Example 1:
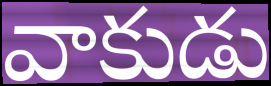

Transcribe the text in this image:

వాకుడు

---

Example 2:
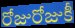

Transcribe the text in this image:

రోజురోజుకీ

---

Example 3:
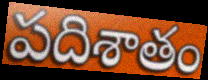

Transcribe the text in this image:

పదిశాతం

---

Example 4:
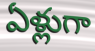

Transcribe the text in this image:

ఏళ్లుగా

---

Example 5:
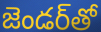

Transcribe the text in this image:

జెండర్‌తో